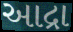
આદ્રા